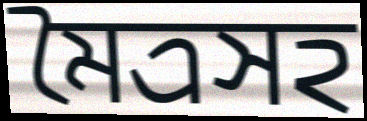
মৈত্রসহ